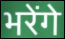
भरेंगे